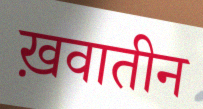
ख़वातीन